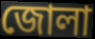
জোলা